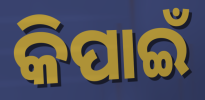
କିପାଇଁ